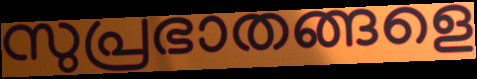
സുപ്രഭാതങ്ങളെ